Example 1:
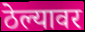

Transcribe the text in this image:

ठेल्यावर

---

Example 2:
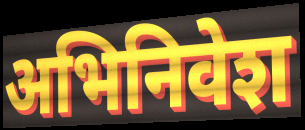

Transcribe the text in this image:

अभिनिवेश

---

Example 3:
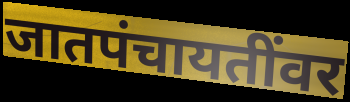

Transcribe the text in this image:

जातपंचायतींवर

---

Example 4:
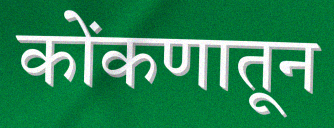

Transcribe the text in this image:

कोंकणातून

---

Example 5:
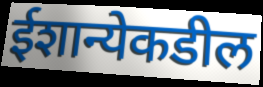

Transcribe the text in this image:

ईशान्येकडील